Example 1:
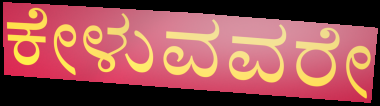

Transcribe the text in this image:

ಕೇಳುವವರೇ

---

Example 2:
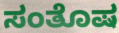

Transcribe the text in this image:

ಸಂತೊಷ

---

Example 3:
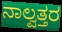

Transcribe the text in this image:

ನಾಲ್ವತ್ತರ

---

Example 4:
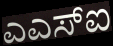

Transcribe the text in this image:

ಎಎಸ್ಐ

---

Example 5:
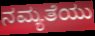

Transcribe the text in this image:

ನಮ್ಯತೆಯು